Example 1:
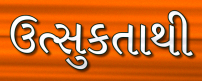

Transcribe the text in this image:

ઉત્સુકતાથી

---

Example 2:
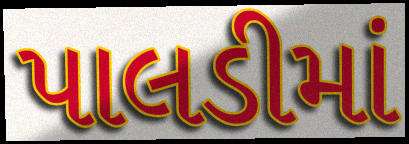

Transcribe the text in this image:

પાલડીમાં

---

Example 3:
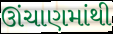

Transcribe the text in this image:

ઊંચાણમાંથી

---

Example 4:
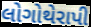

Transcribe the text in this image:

લોગોથેરાપી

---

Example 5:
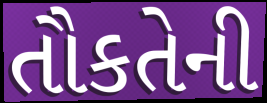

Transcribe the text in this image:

તૌકતેની